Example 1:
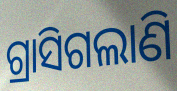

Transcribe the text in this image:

ଗ୍ରାସିଗଲାଣି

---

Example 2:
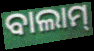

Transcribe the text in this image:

ବାଲାମ୍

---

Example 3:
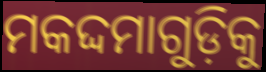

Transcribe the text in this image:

ମକଦ୍ଦମାଗୁଡ଼ିକୁ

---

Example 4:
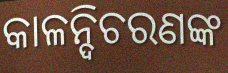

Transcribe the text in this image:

କାଳନ୍ଦିଚରଣଙ୍କ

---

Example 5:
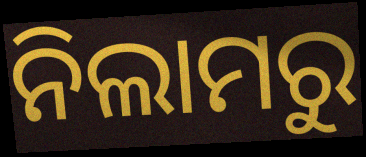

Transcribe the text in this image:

ନିଲାମରୁ